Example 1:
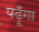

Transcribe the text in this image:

पढ़ूँगा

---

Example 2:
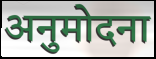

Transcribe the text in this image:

अनुमोदना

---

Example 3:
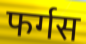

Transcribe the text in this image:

फर्गस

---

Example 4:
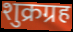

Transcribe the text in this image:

शुक्रग्रह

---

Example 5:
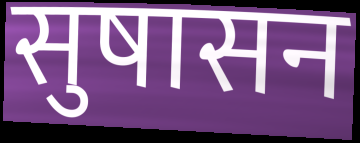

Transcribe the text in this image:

सुषासन